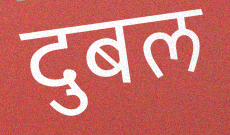
दुबल